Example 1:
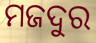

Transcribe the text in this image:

ମଜଦୁର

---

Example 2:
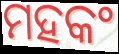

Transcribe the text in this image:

ମହକଂ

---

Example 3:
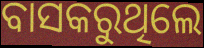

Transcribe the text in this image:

ବାସକରୁଥିଲେ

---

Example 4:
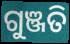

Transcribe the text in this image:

ଗୁଞ୍ଜତି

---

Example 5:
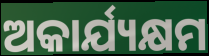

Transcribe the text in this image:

ଅକାର୍ଯ୍ୟକ୍ଷମ